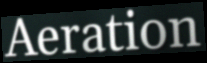
Aeration